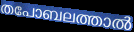
തപോബലത്താൽ